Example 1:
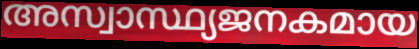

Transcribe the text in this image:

അസ്വാസ്ഥ്യജനകമായ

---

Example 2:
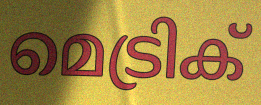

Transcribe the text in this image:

മെട്രിക്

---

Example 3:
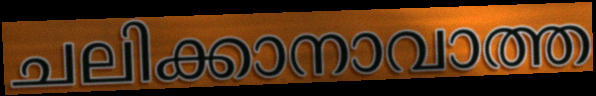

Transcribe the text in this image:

ചലിക്കാനാവാത്ത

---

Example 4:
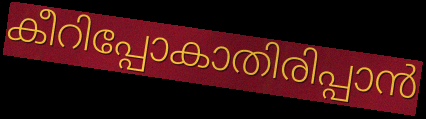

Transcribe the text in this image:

കീറിപ്പോകാതിരിപ്പാൻ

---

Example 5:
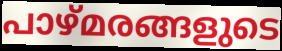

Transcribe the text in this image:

പാഴ്മരങ്ങളുടെ